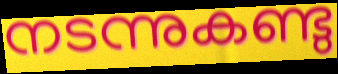
നടന്നുകണ്ടു